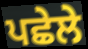
ਪਛੇਲੇ